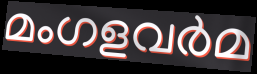
മംഗളവർമ